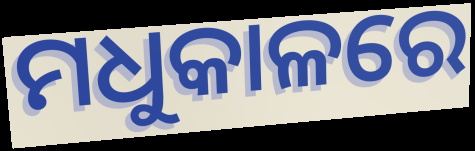
ମଧୁକାଳରେ